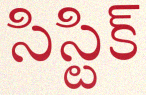
సిస్టిక్